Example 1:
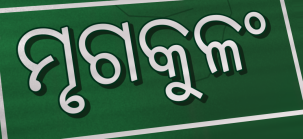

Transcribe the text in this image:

ମୃଗକୁଳଂ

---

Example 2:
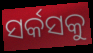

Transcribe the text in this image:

ସର୍କସକୁ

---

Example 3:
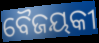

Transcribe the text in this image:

ବୈଜୟକୀ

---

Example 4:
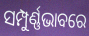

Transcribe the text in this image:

ସମ୍ପୁର୍ଣ୍ଣଭାବରେ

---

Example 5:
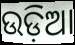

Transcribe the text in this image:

ଉଡ଼ିଆ